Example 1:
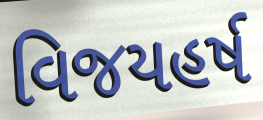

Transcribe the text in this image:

વિજયહર્ષ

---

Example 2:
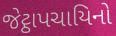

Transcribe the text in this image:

જેટ્ઠાપચાયિનો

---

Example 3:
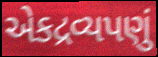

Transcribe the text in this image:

એકદ્રવ્યપણું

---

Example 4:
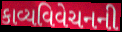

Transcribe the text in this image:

કાવ્યવિવેચનની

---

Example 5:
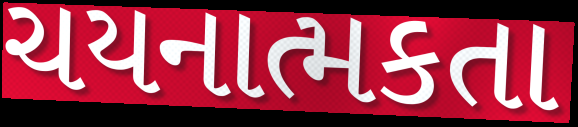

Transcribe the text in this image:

ચયનાત્મકતા